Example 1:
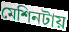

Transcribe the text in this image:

মেশিনটায়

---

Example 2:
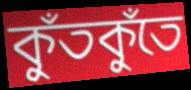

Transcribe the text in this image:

কুঁতকুঁতে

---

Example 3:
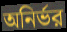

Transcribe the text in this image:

অনির্ভর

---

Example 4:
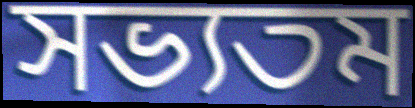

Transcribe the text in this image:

সভ্যতম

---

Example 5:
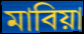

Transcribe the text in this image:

মাবিয়া